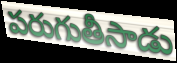
పరుగుతీసాడు